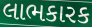
લાભકારક